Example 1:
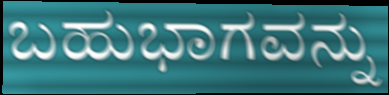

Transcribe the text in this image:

ಬಹುಭಾಗವನ್ನು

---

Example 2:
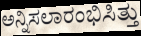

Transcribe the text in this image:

ಅನ್ನಿಸಲಾರಂಭಿಸಿತ್ತು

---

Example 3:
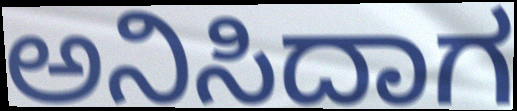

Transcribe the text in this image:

ಅನಿಸಿದಾಗ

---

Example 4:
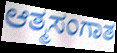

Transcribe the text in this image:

ಆತ್ಮಸಂಗಾತ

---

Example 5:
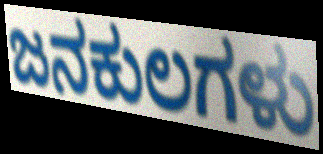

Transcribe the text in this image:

ಜನಕುಲಗಳು